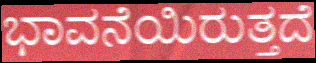
ಭಾವನೆಯಿರುತ್ತದೆ